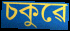
চকুৱে